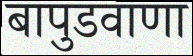
बापुडवाणा